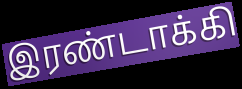
இரண்டாக்கி